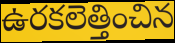
ఉరకలెత్తించిన